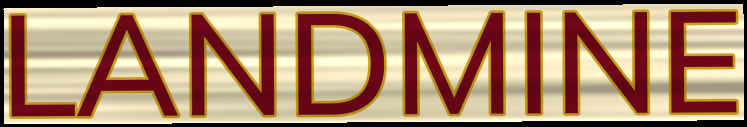
LANDMINE